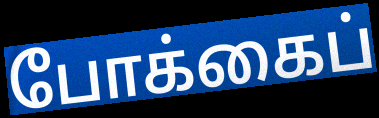
போக்கைப்